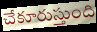
చేకూరుస్తుంది